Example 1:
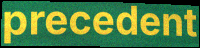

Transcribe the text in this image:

precedent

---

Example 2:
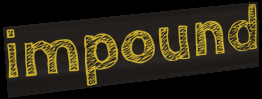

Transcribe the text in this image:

impound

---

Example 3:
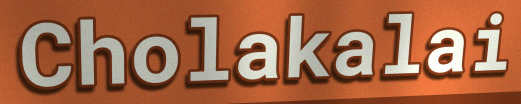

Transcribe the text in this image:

Cholakalai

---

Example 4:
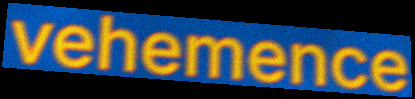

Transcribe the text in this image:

vehemence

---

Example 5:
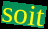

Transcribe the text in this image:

soit